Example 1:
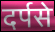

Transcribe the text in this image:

दर्पसे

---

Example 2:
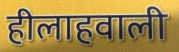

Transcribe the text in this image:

हीलाहवाली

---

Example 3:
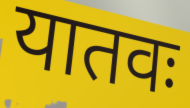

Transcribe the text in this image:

यातवः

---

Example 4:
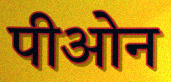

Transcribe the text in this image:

पीओन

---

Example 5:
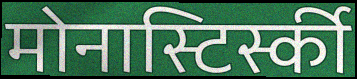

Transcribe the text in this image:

मोनास्टिर्स्की